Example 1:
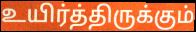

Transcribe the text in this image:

உயிர்த்திருக்கும்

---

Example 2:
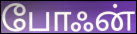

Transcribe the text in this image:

போஃன்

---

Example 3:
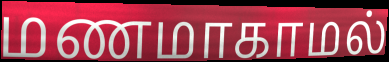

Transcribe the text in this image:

மணமாகாமல்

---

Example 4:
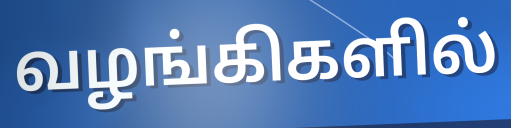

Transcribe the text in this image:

வழங்கிகளில்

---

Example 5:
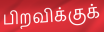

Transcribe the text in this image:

பிறவிக்குக்